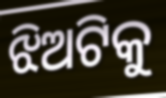
ଝିଅଟିକୁ